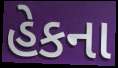
હેકના